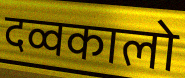
दव्वकालो